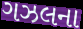
ગઝલના